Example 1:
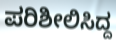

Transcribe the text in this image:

ಪರಿಶೀಲಿಸಿದ್ದ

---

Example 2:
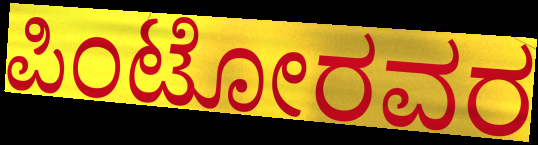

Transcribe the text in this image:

ಪಿಂಟೋರವರ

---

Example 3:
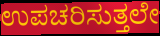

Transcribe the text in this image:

ಉಪಚರಿಸುತ್ತಲೇ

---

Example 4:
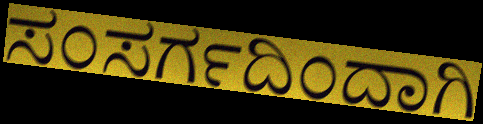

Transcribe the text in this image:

ಸಂಸರ್ಗದಿಂದಾಗಿ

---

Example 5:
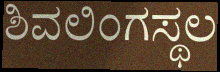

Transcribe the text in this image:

ಶಿವಲಿಂಗಸ್ಥಲ